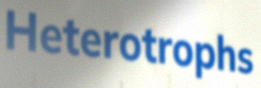
Heterotrophs